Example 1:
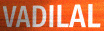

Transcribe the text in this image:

VADILAL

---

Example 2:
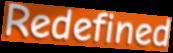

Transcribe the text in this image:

Redefined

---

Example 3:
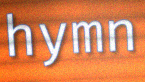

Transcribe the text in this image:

hymn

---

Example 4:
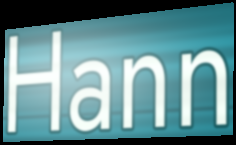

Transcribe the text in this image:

Hann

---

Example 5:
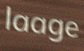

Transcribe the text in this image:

laage